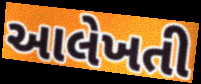
આલેખતી